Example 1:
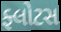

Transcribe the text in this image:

ફ્લોટસ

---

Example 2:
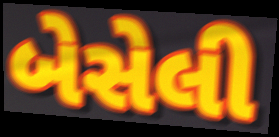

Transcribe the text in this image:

બેસેલી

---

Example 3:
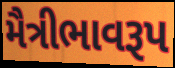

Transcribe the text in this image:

મૈત્રીભાવરૂપ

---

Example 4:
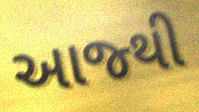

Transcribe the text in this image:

આજ્થી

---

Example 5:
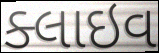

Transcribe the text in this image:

ક્લાઇવ